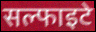
सल्फाइटे